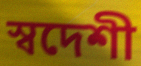
স্বদেশী